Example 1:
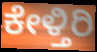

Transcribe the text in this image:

ಕೇಳ್ತಿರಿ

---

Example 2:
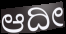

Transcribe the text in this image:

ಆದೀ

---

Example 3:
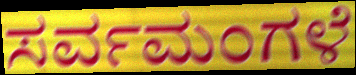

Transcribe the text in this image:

ಸರ್ವಮಂಗಳೆ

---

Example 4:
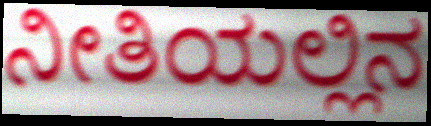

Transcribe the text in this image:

ನೀತಿಯಲ್ಲಿನ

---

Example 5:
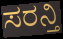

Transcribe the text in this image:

ಸರನ್ತಿ